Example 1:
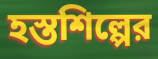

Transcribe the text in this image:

হস্তশিল্পের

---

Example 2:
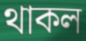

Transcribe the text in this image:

থাকল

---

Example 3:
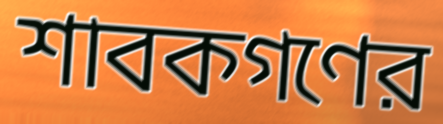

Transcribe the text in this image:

শাবকগণের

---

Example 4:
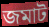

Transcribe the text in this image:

জমাট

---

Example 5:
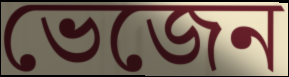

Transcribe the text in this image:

ভেজেন